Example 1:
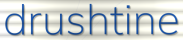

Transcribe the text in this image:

drushtine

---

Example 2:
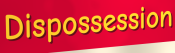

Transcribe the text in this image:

Dispossession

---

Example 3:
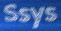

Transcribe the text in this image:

Ssys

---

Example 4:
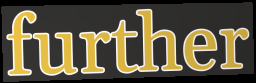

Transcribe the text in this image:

further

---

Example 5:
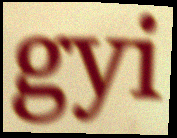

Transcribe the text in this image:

gyi